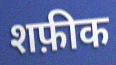
शफ़ीक